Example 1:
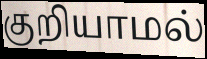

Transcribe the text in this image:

குறியாமல்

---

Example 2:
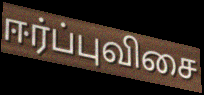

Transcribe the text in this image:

ஈர்ப்புவிசை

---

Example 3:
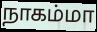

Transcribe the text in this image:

நாகம்மா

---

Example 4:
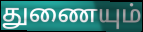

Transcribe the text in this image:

துணையும்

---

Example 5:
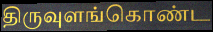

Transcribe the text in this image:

திருவுளங்கொண்ட